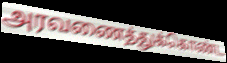
அரவணைத்துக்கொண்ட